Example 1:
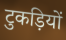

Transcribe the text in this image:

टुकड़ियों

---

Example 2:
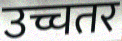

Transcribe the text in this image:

उच्चतर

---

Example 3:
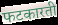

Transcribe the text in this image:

फटकारती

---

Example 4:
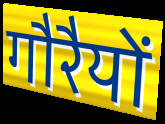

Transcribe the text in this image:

गौरैयों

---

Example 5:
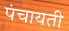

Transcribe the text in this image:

पंचायती